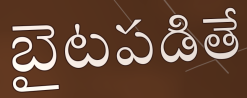
బైటపడితే